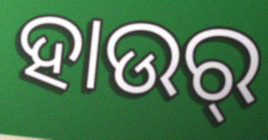
ହାଉର୍